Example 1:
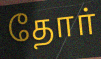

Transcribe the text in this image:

தோர்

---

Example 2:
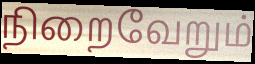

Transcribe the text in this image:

நிறைவேறும்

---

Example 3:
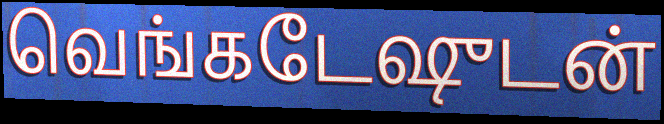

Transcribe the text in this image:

வெங்கடேஷுடன்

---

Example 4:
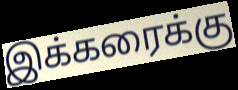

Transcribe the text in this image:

இக்கரைக்கு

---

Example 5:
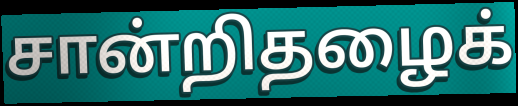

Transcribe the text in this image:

சான்றிதழைக்